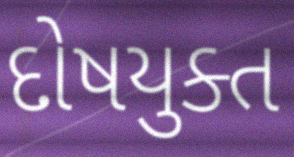
દોષયુક્ત